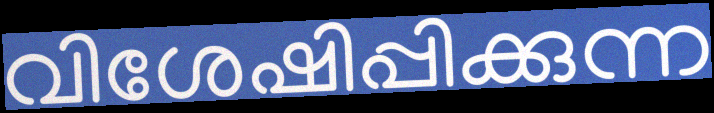
വിശേഷിപ്പിക്കുന്ന